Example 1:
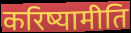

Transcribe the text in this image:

करिष्यामीति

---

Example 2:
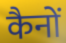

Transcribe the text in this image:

कैनों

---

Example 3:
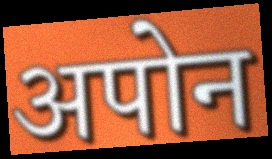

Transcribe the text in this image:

अपोन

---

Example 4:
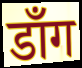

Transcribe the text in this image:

डाँग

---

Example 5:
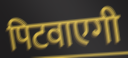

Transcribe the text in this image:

पिटवाएगी